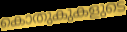
കൊതുകുകളുടെ